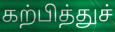
கற்பித்துச்